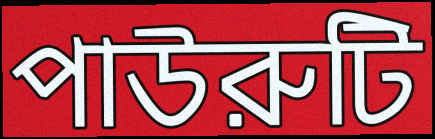
পাউরুটি